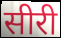
सीरी